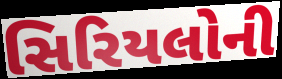
સિરિયલોની